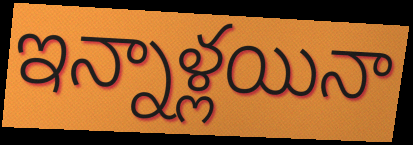
ఇన్నాళ్లయినా